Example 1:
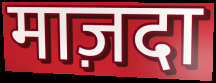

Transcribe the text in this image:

माज़दा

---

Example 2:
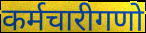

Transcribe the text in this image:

कर्मचारीगणो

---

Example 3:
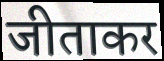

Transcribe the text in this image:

जीताकर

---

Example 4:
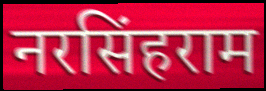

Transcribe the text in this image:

नरसिंहराम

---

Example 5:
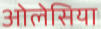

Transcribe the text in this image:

ओलेसिया